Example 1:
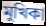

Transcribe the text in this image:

মুখিকা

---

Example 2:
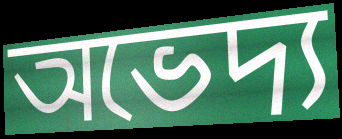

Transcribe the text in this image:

অভেদ্য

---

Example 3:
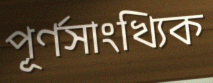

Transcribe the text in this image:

পূর্ণসাংখ্যিক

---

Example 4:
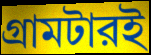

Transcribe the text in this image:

গ্রামটারই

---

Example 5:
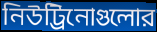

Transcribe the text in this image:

নিউট্রিনোগুলোর